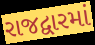
રાજદ્વારમાં